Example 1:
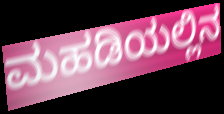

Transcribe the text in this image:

ಮಹಡಿಯಲ್ಲಿನ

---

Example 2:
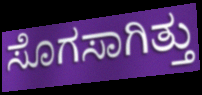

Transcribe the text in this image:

ಸೊಗಸಾಗಿತ್ತು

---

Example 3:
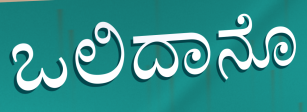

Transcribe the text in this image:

ಒಲಿದಾನೊ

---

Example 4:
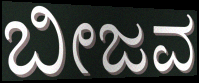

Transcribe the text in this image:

ಬೀಜವ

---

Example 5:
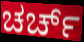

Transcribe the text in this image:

ಚರ್ಚ್